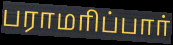
பராமரிப்பார்